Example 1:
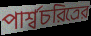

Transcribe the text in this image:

পার্শ্বচরিত্রের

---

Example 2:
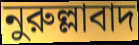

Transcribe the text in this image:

নুরুল্লাবাদ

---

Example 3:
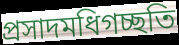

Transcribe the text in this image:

প্রসাদমধিগচ্ছতি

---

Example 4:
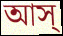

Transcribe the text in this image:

আস্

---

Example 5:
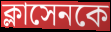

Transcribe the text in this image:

ক্লাসেনকে